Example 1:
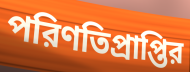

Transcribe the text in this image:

পরিণতিপ্রাপ্তির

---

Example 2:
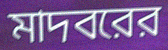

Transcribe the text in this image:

মাদবরের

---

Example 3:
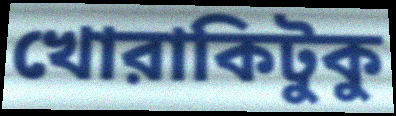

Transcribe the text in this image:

খোরাকিটুকু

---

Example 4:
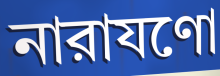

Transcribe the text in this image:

নারাযণো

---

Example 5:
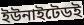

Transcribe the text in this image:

ইউনাইটেডই